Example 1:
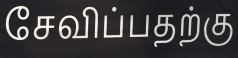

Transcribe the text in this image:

சேவிப்பதற்கு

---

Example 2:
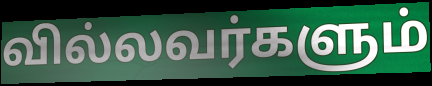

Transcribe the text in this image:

வில்லவர்களும்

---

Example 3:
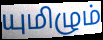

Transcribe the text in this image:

யுமிழும்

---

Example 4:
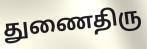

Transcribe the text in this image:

துணைதிரு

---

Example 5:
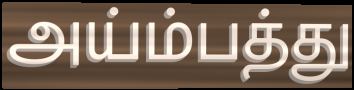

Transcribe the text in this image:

அய்ம்பத்து